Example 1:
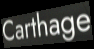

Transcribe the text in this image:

Carthage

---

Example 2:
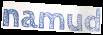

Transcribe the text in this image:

namud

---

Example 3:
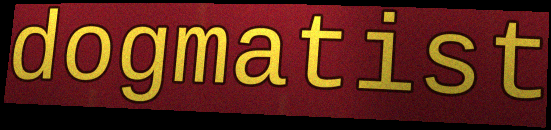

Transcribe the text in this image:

dogmatist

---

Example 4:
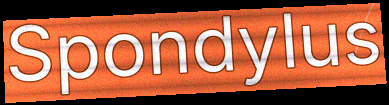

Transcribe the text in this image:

Spondylus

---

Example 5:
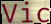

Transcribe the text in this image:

Vic